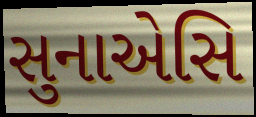
સુનાએસિ